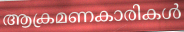
ആക്രമണകാരികൾ